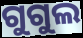
ଗୁଗୁଲ